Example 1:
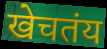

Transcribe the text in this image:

खेचतंय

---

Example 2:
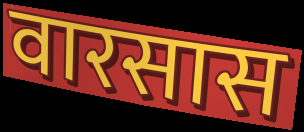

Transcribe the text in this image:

वारसास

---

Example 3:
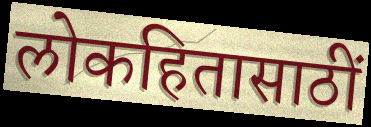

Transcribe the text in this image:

लोकहितासाठीं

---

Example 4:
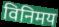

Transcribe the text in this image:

विनिमय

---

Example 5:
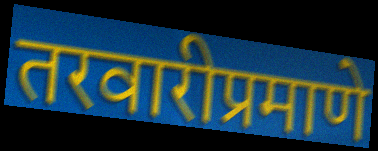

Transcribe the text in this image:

तरवारीप्रमाणे